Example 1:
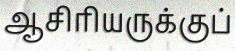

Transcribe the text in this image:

ஆசிரியருக்குப்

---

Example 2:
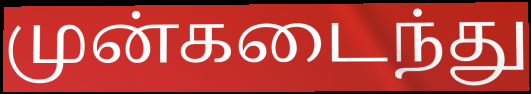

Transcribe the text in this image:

முன்கடைந்து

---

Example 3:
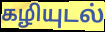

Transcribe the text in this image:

கழியுடல்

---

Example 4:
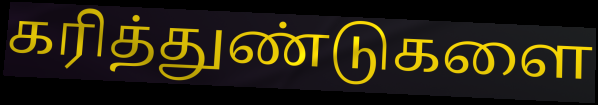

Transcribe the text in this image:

கரித்துண்டுகளை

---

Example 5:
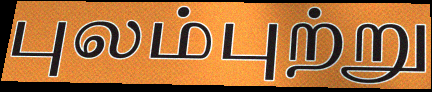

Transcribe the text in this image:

புலம்புற்று